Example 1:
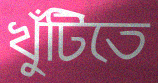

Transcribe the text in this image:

খুঁটিতে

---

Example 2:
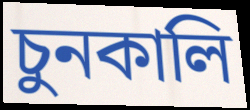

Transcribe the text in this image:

চুনকালি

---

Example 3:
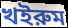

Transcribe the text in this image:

খইরুম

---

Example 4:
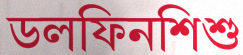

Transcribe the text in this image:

ডলফিনশিশু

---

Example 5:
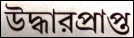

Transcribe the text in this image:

উদ্ধারপ্রাপ্ত